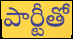
పార్టీతో